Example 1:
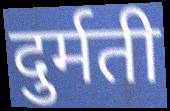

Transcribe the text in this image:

दुर्मती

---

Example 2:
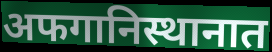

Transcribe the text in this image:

अफगानिस्थानात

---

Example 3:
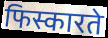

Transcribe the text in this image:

फिस्कारते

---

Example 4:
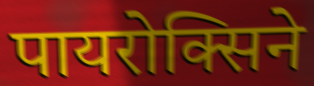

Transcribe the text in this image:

पायरोक्सिने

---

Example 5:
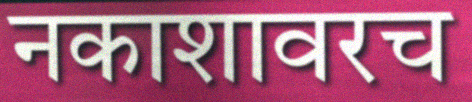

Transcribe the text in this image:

नकाशावरच